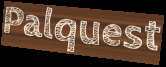
Palquest